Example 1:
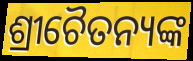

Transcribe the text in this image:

ଶ୍ରୀଚୈତନ୍ୟଙ୍କ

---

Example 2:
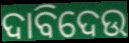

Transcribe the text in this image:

ଦାବିଦେଉ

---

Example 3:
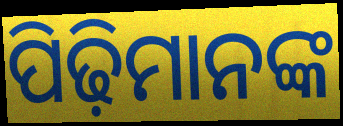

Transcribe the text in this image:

ପିଢ଼ିମାନଙ୍କ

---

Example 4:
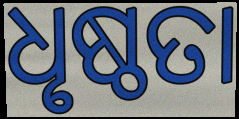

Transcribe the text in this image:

ଧୃଷ୍ଠତା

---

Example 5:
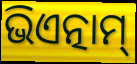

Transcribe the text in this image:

ଭିଏତ୍ନାମ୍